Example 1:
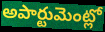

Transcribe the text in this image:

అపార్టుమెంట్లో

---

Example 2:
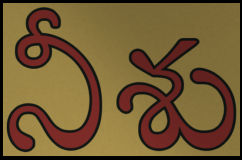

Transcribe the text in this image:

నీశు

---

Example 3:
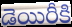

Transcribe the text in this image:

డెయిరీకి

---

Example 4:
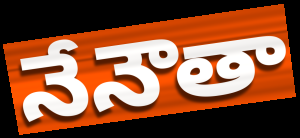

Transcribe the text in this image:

నేనౌతా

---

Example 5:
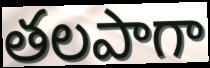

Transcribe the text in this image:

తలపాగా